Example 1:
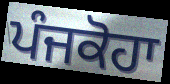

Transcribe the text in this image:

ਪੰਜਕੋਹਾ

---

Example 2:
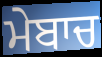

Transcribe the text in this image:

ਮੇਬਾਚ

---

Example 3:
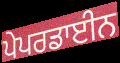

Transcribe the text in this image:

ਪੇਪਰਡਾਈਨ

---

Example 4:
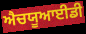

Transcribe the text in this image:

ਐਚਯੂਆਈਡੀ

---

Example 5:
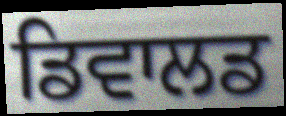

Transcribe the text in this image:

ਡਿਵਾਲਡ